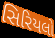
સિરિયલો